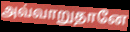
அவ்வாறுதானே